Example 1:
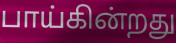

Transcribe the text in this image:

பாய்கின்றது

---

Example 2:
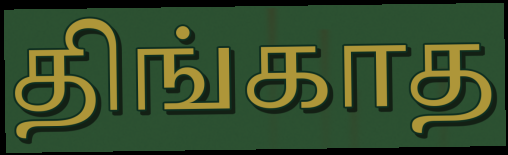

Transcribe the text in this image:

திங்காத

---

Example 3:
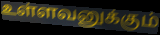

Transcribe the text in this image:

உள்ளவனுக்கும்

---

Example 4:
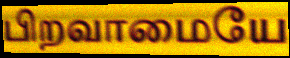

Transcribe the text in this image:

பிறவாமையே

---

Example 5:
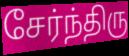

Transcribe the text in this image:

சேர்ந்திரு